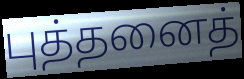
புத்தனைத்